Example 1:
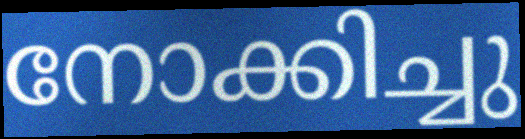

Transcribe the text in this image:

നോക്കിച്ചു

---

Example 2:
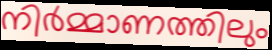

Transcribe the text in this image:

നിർമ്മാണത്തിലും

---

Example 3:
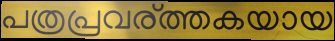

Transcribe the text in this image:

പത്രപ്രവര്ത്തകയായ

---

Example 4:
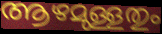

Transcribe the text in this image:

ആഴമുള്ളതും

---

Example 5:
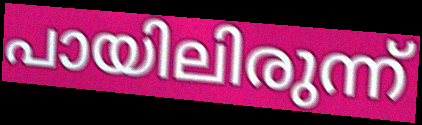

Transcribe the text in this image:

പായിലിരുന്ന്